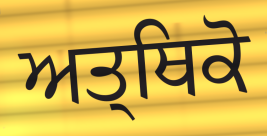
ਅਤ੍ਥਿਕੋ